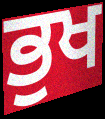
ਭੁਖ